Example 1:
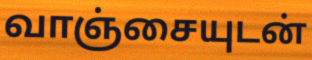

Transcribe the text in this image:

வாஞ்சையுடன்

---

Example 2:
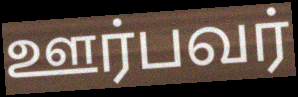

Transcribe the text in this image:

ஊர்பவர்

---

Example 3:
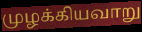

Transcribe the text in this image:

முழக்கியவாறு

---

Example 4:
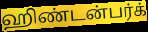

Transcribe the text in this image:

ஹிண்டன்பர்க்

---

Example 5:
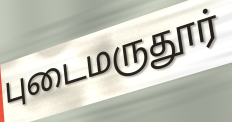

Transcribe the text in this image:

புடைமருதூர்